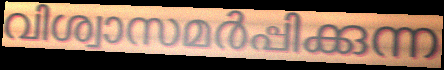
വിശ്വാസമർപ്പിക്കുന്ന